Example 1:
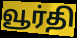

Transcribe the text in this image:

வூர்தி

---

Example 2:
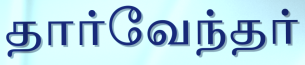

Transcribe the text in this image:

தார்வேந்தர்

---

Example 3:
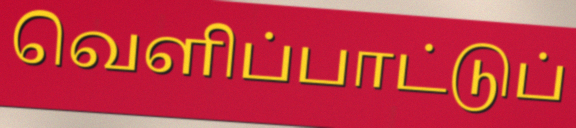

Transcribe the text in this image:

வெளிப்பாட்டுப்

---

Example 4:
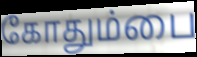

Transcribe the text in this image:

கோதும்பை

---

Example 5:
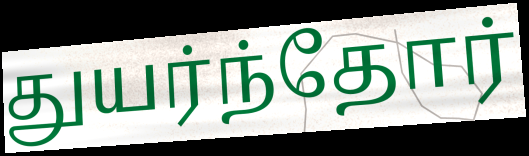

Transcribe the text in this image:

துயர்ந்தோர்